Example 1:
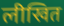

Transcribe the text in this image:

लीखित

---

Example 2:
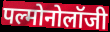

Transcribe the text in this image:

पल्मोनोलॉजी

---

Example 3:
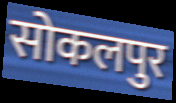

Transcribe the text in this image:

सोकलपुर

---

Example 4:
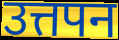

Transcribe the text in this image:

उत्तपन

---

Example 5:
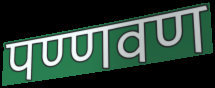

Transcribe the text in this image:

पण्णवण